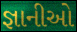
જ્ઞાનીઓ